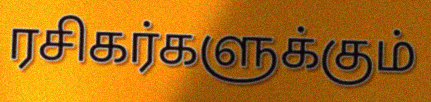
ரசிகர்களுக்கும்